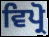
ਵਿਪ੍ਰੋ